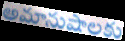
అమానుషాలకు